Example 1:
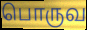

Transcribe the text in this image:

பொருவ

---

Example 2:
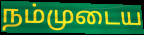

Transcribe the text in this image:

நம்முடைய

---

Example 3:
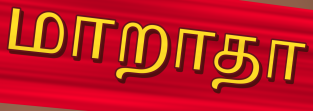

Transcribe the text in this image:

மாறாதா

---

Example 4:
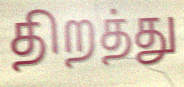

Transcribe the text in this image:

திறத்து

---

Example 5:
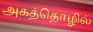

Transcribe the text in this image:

அகத்தொழில்